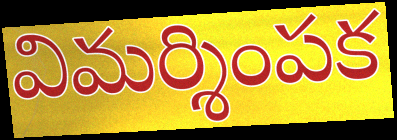
విమర్శింపక